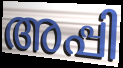
അപ്പി